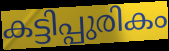
കട്ടിപ്പുരികം